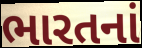
ભારતનાં